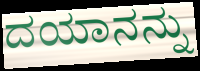
ದಯಾನನ್ನು